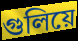
গুলিয়ে